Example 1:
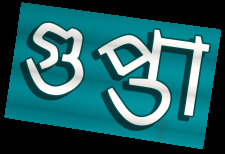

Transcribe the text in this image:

গুপ্তা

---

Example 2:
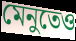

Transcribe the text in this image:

মেনুতেও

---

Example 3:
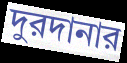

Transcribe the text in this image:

দুরদানার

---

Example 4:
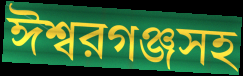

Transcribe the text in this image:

ঈশ্বরগঞ্জসহ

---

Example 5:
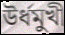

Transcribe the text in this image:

উর্ধমুখী